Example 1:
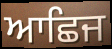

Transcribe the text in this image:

ਆਛਿਜ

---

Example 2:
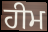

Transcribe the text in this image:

ਹੀਮ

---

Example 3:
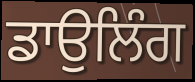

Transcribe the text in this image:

ਡਾਉਲਿੰਗ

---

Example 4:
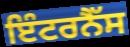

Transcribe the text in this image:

ਇੰਟਰਨੈੱਸ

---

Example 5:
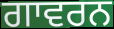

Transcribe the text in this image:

ਗਾਵਰਨ